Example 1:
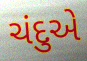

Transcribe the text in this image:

ચંદુએ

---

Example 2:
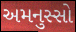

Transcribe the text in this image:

અમનુસ્સો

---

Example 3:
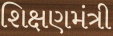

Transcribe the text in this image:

શિક્ષણમંત્રી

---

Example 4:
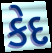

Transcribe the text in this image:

કેદ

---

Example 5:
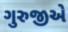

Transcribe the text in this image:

ગુરુજીએ